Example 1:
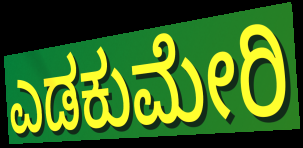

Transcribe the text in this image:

ಎಡಕುಮೇರಿ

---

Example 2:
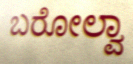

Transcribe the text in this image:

ಬರೋಲ್ವಾ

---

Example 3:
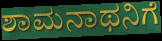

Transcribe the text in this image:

ಶಾಮನಾಥನಿಗೆ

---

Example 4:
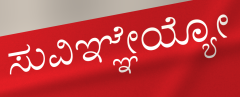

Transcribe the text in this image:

ಸುವಿಞ್ಞೇಯ್ಯೋ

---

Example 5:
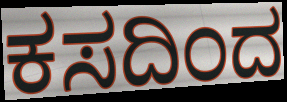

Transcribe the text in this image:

ಕಸದಿಂದ